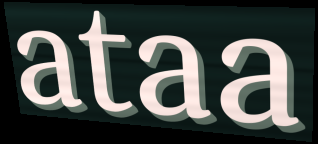
ataa